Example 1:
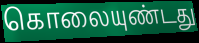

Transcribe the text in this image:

கொலையுண்டது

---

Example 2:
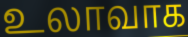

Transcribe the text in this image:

உலாவாக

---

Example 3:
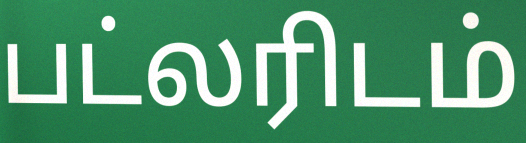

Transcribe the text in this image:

பட்லரிடம்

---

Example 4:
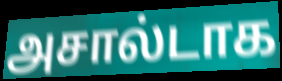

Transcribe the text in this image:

அசால்டாக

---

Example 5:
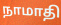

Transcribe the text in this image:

நாமாதி